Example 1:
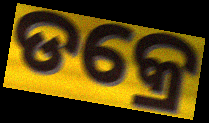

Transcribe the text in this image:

ଡକ୍ରେ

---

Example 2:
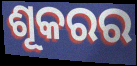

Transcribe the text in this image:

ଶୂକରର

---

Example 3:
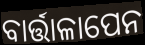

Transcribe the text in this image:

ବାର୍ତ୍ତାଳାପେନ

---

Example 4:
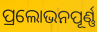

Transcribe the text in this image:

ପ୍ରଲୋଭନପୂର୍ଣ୍ଣ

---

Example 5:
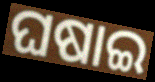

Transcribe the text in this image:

ଘଷାଇ